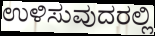
ಉಳಿಸುವುದರಲ್ಲಿ